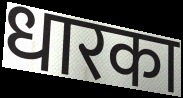
धारका